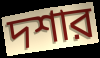
দশার